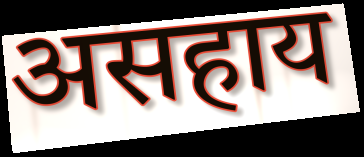
असहाय